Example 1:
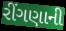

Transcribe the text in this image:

રીંગણાની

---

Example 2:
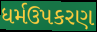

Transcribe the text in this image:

ધર્મઉપકરણ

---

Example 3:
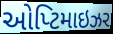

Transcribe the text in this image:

ઓપ્ટિમાઇઝર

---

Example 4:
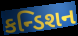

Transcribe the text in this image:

કન્ડિશન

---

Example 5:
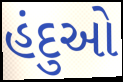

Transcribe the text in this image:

હંદુઓ